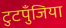
टुटपुँजिया